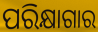
ପରିକ୍ଷାଗାର